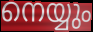
നെയ്യും